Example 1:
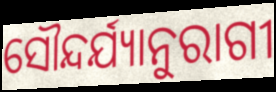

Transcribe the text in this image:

ସୌନ୍ଦର୍ଯ୍ୟାନୁରାଗୀ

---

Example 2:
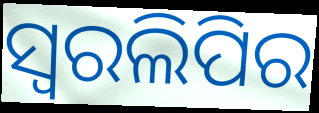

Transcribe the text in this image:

ସ୍ୱରଲିପିର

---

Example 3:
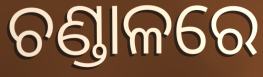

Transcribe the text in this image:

ଚଣ୍ଡାଳରେ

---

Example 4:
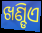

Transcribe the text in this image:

ଖଣ୍ଡିଏ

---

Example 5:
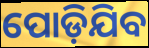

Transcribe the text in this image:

ପୋଡ଼ିଯିବ